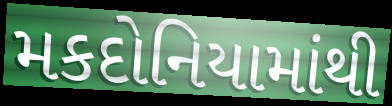
મકદોનિયામાંથી